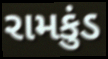
રામકુંડ